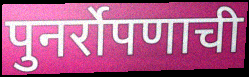
पुनर्रोपणाची